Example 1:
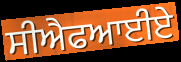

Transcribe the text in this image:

ਸੀਐਫਆਈਏ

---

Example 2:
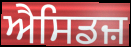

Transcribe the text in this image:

ਐਸਿਡਜ਼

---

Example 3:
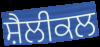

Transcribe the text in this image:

ਸ਼ੈਲੀਕਲ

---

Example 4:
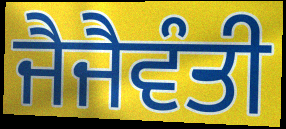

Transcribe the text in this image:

ਜੈਜੈਵੰਤੀ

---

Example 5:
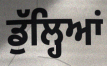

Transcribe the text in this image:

ਡੁੱਲ੍ਹਿਆਂ